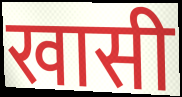
खासी